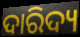
ଦାରିଦ୍ୟ